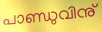
പാണ്ഡുവിനു്